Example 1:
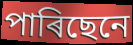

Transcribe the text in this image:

পাৰিছেনে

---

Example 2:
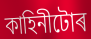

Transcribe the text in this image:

কাহিনীটোৰ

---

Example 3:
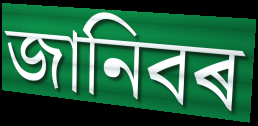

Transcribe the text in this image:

জানিবৰ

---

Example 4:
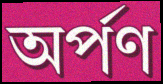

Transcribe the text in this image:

অৰ্পণ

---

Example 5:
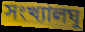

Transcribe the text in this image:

সংখ্যালঘু